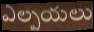
ఎల్పయలు